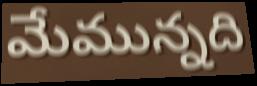
మేమున్నది